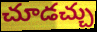
చూడచ్చు